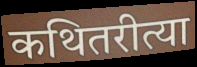
कथितरीत्या